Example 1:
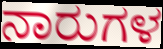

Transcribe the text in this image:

ನಾರುಗಳ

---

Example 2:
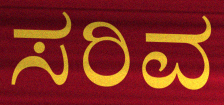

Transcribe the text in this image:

ಸರಿವ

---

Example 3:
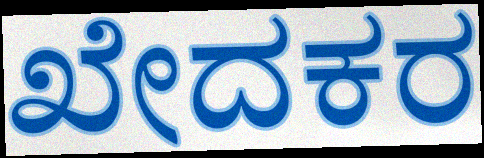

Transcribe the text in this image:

ಖೇದಕರ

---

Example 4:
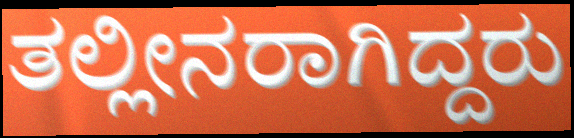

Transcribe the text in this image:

ತಲ್ಲೀನರಾಗಿದ್ದರು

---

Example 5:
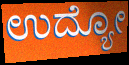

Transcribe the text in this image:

ಉದ್ಯೋ